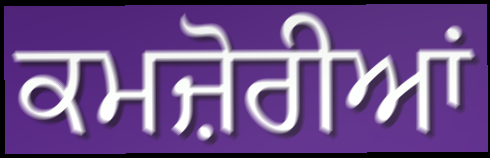
ਕਮਜ਼ੋਰੀਆਂ